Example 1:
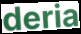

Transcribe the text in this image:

deria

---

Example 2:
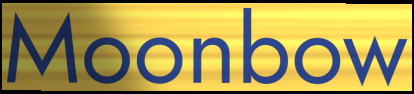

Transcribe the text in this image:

Moonbow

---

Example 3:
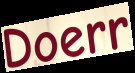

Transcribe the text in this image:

Doerr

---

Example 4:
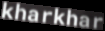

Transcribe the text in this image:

kharkhar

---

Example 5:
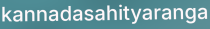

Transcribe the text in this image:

kannadasahityaranga